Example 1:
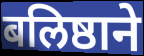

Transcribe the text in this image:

बलिष्ठाने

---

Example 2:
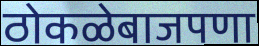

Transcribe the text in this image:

ठोकळेबाजपणा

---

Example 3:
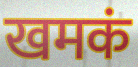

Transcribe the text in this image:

खमकं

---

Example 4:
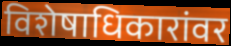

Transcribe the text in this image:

विशेषाधिकारांवर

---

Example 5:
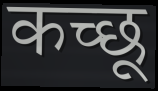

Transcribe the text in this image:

कच्छू